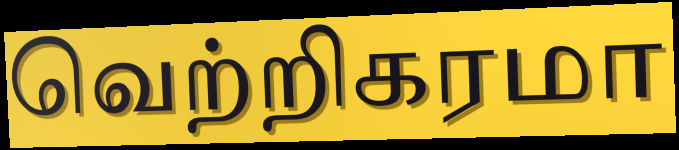
வெற்றிகரமா